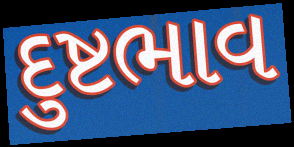
દુષ્ટભાવ